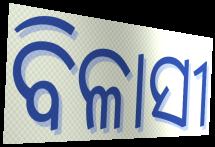
ବିଳାସୀ